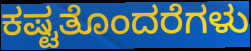
ಕಷ್ಟತೊಂದರೆಗಳು